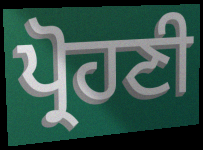
ਪ੍ਰੋਹਣੀ